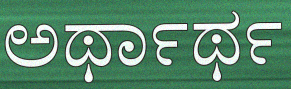
ಅರ್ಥಾರ್ಥ